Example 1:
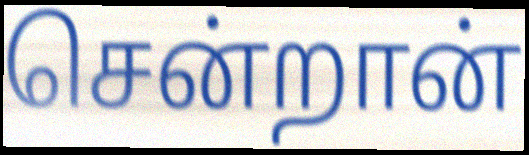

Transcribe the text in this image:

சென்றான்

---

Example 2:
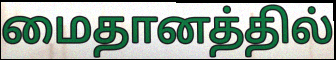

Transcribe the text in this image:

மைதானத்தில்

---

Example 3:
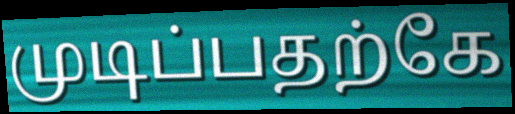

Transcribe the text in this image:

முடிப்பதற்கே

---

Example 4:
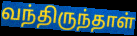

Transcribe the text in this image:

வந்திருந்தாள்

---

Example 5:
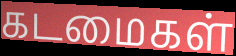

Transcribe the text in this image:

கடமைகள்